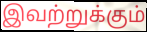
இவற்றுக்கும்